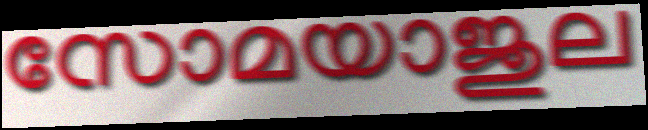
സോമയാജുല